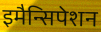
इमैन्सिपेशन